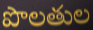
పొలతుల